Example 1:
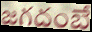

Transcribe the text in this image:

జగదంబే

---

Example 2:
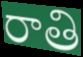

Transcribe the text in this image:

రాతి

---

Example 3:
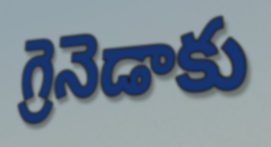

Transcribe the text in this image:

గ్రెనెడాకు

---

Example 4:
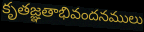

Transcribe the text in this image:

కృతజ్ఞతాభివందనములు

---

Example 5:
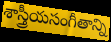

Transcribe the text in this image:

శాస్త్రీయసంగీతాన్ని